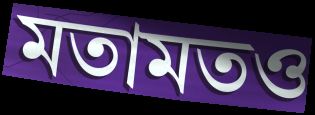
মতামতও